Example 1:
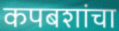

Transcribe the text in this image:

कपबशांचा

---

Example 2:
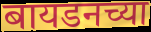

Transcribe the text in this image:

बायडनच्या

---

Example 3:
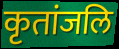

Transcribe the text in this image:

कृतांजलि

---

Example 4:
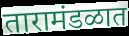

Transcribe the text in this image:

तारामंडळात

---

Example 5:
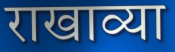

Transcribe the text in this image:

राखाव्या